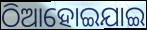
ଠିଆହୋଇଯାଇ